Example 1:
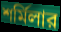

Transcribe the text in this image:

শর্মিলার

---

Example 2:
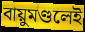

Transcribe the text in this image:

বায়ুমণ্ডলেই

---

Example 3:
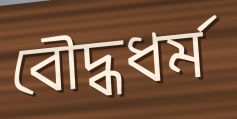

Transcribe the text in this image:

বৌদ্ধধর্ম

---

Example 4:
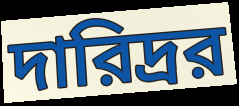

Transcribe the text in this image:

দারিদ্রর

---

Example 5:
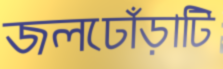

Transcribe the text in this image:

জলঢোঁড়াটি